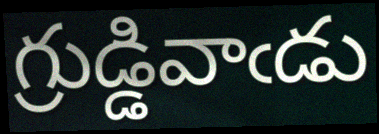
గ్రుడ్డివాఁడు